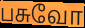
பசுவோ